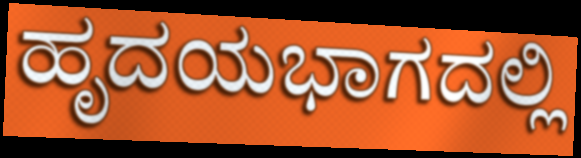
ಹೃದಯಭಾಗದಲ್ಲಿ